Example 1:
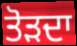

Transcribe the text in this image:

ਤੋੜਦਾ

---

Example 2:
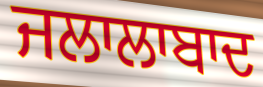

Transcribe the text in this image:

ਜਲਾਲਾਬਾਦ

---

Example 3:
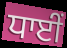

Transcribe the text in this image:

ਧਾਈਂ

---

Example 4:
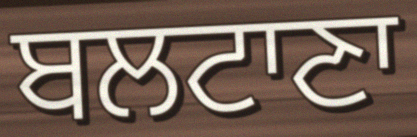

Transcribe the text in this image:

ਬਲਟਾਣਾ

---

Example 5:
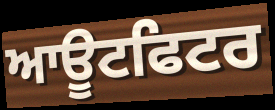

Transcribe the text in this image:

ਆਊਟਫਿਟਰ